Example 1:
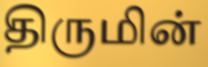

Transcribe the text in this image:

திருமின்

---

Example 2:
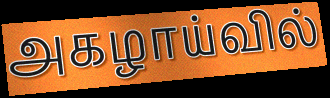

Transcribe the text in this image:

அகழாய்வில்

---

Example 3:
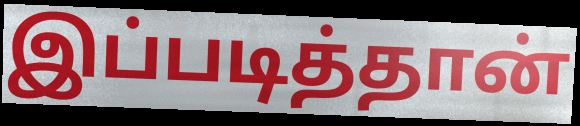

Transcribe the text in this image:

இப்படித்தான்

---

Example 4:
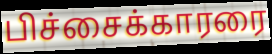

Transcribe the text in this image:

பிச்சைக்காரரை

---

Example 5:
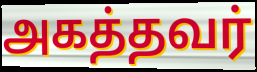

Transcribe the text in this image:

அகத்தவர்